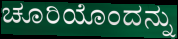
ಚೂರಿಯೊಂದನ್ನು